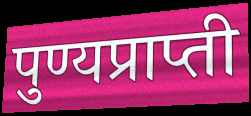
पुण्यप्राप्ती